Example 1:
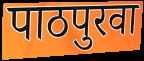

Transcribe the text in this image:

पाठपुरवा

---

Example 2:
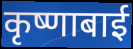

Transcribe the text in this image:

कृष्णाबाई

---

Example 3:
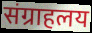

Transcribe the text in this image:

संग्राहलय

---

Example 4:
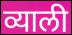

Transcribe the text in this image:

व्याली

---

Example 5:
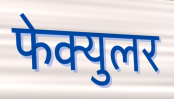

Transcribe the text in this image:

फेक्युलर